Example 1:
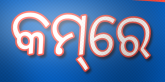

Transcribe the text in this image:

କମ୍‌ରେ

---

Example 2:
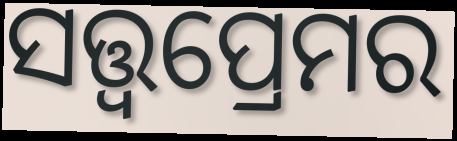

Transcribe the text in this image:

ସତ୍ତ୍ୱପ୍ରେମର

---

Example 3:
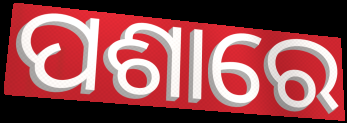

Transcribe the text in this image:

ପଶାରେ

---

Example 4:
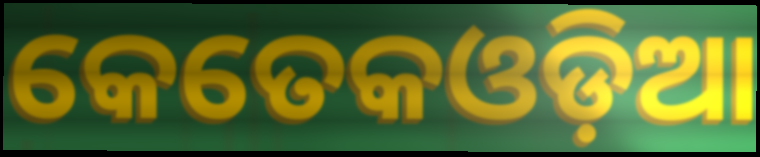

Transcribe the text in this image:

କେତେକଓଡ଼ିଆ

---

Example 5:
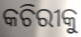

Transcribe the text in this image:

କଚିରୀକୁ